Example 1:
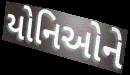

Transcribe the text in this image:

યોનિઓને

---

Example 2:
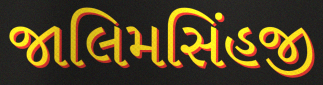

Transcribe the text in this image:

જાલિમસિંહજી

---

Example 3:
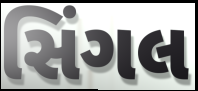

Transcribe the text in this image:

સિંગલ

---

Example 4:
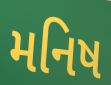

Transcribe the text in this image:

મનિષ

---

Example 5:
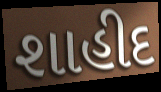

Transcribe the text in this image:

શાહીદ